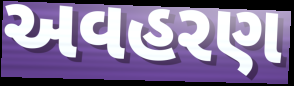
અવહરણ